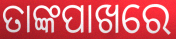
ତାଙ୍କପାଖରେ